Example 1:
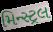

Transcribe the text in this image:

મિન્સ્ટ્રલ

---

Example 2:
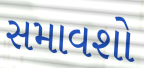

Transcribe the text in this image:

સમાવશો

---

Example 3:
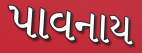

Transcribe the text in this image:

પાવનાય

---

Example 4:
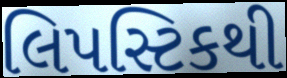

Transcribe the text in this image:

લિપસ્ટિકથી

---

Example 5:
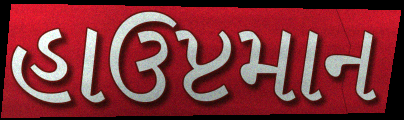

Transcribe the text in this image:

હાઉપ્ટમાન